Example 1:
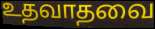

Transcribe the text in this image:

உதவாதவை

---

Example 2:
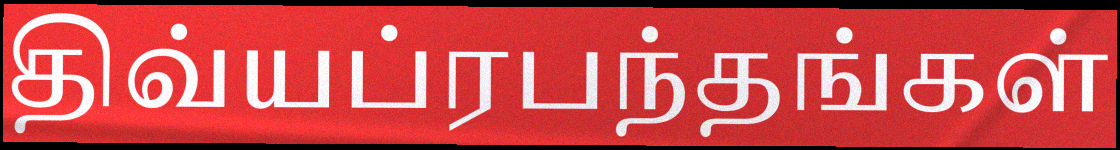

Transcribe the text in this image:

திவ்யப்ரபந்தங்கள்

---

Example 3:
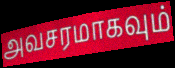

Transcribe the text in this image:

அவசரமாகவும்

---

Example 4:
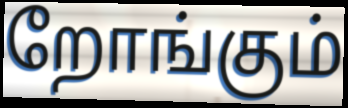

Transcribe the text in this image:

றோங்கும்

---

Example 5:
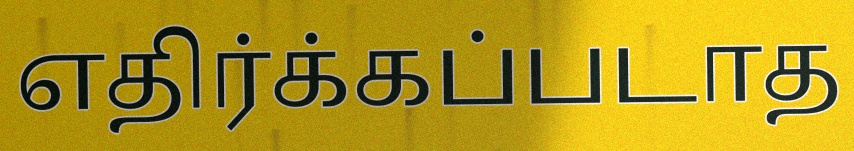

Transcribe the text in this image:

எதிர்க்கப்படாத